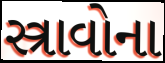
સ્ત્રાવોના